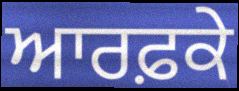
ਆਰਫ਼ਕੇ